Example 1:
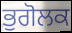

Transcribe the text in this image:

ਭੁਗੋਲਕ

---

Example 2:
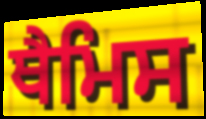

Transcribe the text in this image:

ਥੈਮਿਸ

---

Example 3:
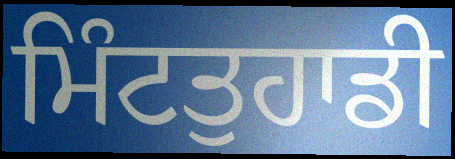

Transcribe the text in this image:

ਮਿੰਟਤੁਹਾਡੀ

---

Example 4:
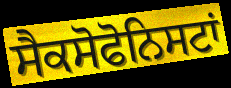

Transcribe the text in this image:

ਸੈਕਸੋਫੋਨਿਸਟਾਂ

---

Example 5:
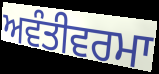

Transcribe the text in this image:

ਅਵੰਤੀਵਰਮਾ